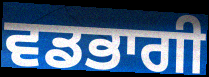
ਵਡਭਾਗੀ